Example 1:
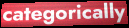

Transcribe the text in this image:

categorically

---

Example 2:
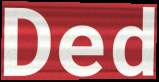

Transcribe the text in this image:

Ded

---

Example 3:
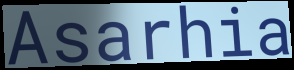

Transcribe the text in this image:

Asarhia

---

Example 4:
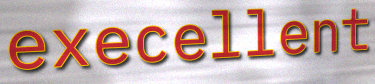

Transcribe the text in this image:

execellent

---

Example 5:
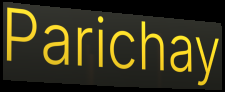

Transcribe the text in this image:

Parichay